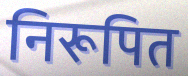
निरूपित